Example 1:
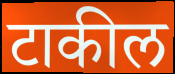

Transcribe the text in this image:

टाकील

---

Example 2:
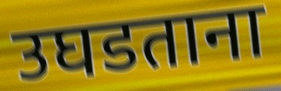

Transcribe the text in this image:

उघडताना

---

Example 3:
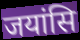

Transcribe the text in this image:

जयांसि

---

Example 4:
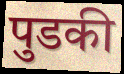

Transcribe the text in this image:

पुडकी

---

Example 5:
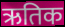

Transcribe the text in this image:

ऋतिक